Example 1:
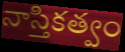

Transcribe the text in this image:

నాస్తికత్వం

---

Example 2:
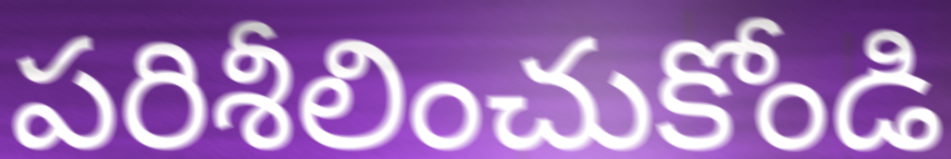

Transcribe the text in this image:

పరిశీలించుకోండి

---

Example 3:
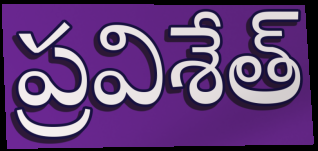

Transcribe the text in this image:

ప్రవిశేత్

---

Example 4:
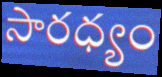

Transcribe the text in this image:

సారధ్యం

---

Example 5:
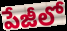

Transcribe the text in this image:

పేజీలో